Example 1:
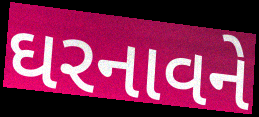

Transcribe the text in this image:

ઘરનાવને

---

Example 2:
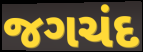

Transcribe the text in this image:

જગચંદ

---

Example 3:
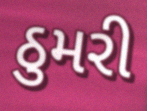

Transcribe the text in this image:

ઠુમરી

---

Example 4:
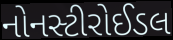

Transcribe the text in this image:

નોનસ્ટીરોઈડલ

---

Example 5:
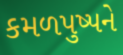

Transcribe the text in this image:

કમળપુષ્પને